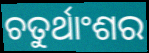
ଚତୁର୍ଥାଂଶର